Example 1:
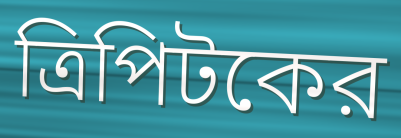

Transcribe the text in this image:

ত্রিপিটকের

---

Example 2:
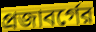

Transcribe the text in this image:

প্রজাবর্গের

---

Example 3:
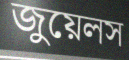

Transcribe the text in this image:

জুয়েলস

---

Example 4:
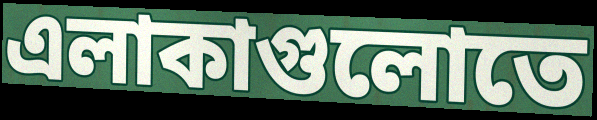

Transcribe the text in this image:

এলাকাগুলোতে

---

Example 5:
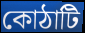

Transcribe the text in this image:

কোঠাটি